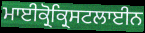
ਮਾਈਕ੍ਰੋਕ੍ਰਿਸਟਲਾਈਨ